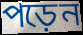
পড়েন